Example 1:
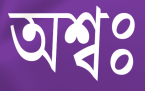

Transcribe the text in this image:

অশ্বঃ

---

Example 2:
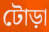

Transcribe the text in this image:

টোড়া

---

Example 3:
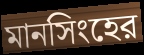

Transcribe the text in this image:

মানসিংহের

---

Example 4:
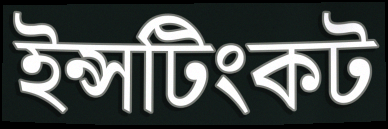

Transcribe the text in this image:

ইন্সটিংকট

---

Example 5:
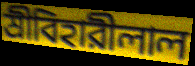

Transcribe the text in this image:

শ্রীবিহারীলাল